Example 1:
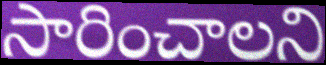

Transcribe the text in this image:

సారించాలని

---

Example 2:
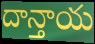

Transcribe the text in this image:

దాన్తాయ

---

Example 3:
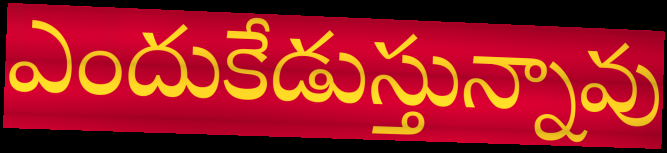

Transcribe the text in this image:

ఎందుకేడుస్తున్నావు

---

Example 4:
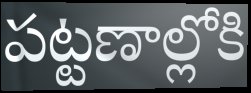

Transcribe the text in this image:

పట్టణాల్లోకి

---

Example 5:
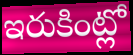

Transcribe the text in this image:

ఇరుకింట్లో